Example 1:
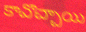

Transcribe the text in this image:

కావొచ్చాయి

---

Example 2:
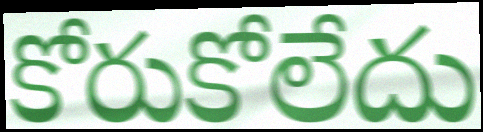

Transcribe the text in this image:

కోరుకోలేదు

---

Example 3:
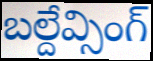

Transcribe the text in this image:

బల్దేవ్సింగ్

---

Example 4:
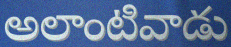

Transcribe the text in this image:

అలాంటివాడు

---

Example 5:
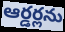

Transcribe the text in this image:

ఆర్డర్లను